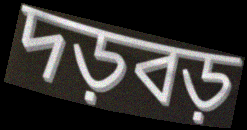
দড়বড়